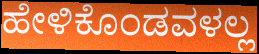
ಹೇಳಿಕೊಂಡವಳಲ್ಲ